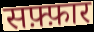
सफ़्फ़ार